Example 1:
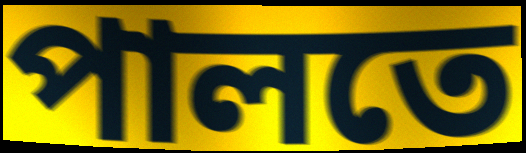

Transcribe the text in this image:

পালতে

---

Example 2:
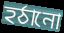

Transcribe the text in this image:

হঠানো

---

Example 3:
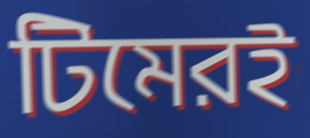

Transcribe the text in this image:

টিমেরই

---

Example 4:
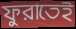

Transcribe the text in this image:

ফুরাতেই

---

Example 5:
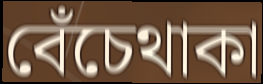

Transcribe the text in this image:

বেঁচেথাকা